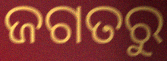
ଜଗତରୁ